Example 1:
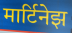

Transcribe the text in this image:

मार्टिनेझ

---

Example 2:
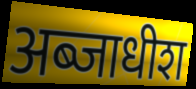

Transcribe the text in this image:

अब्जाधीश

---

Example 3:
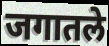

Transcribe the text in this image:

जगातले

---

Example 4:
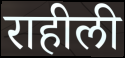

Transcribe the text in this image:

राहीली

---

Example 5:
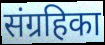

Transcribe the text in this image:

संग्रहिका